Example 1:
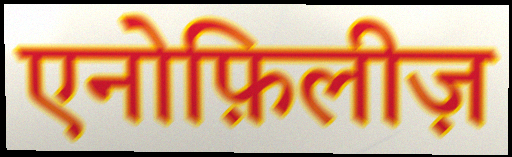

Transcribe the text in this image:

एनोफ़िलीज़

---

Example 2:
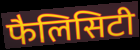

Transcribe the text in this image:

फैलिसिटी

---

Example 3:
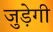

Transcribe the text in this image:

जुड़ेगी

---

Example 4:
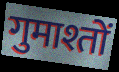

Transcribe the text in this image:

गुमाश्तों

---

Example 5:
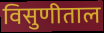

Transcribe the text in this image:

विसुणीताल